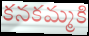
కనకమ్మకి